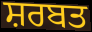
ਸ਼ਰਬਤ